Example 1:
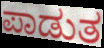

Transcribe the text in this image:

ಪಾಡುತ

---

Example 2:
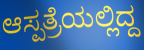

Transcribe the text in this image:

ಆಸ್ಪತ್ರೆಯಲ್ಲಿದ್ದ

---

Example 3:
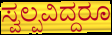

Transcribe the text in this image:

ಸ್ವಲ್ಪವಿದ್ದರೂ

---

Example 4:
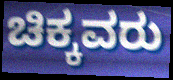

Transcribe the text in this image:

ಚಿಕ್ಕವರು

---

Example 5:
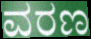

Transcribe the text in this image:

ವರಣ